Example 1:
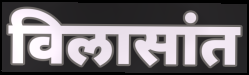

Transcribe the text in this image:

विलासांत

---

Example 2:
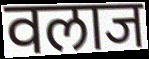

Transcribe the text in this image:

वलाज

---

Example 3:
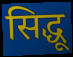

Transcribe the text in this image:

सिद्धू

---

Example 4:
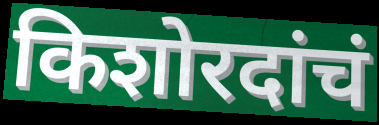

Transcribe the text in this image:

किशोरदांचं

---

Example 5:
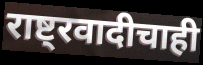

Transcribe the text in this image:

राष्ट्रवादीचाही